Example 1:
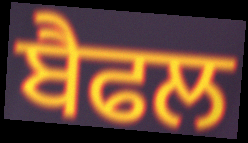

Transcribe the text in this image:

ਬੈਫਲ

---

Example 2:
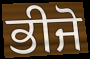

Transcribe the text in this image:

ਭੀਜੋ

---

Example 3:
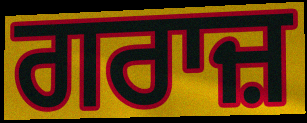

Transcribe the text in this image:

ਗਰਾਜ਼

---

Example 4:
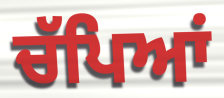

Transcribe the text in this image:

ਚੱਪਿਆਂ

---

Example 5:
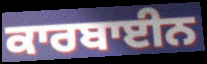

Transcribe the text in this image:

ਕਾਰਬਾਈਨ